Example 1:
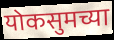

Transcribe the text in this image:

योकसुमच्या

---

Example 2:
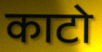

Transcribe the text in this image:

काटो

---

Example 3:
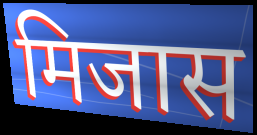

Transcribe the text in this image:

मिजास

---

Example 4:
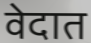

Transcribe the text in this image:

वेदात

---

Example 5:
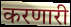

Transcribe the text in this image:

करणारी